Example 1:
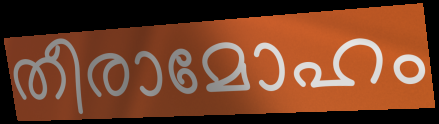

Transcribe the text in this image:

തീരാമോഹം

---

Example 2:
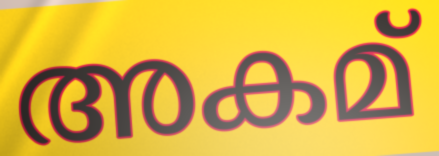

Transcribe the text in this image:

അകമ്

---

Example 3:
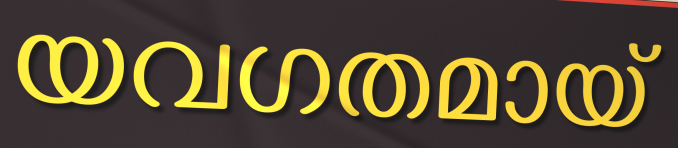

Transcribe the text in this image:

യവഗതമായ്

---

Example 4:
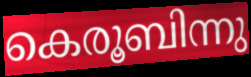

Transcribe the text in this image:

കെരൂബിന്നു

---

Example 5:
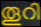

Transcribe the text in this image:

തൂറി